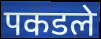
पकडले